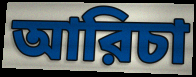
আরিচা